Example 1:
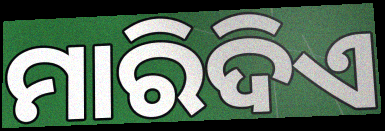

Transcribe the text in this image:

ମାରିଦିଏ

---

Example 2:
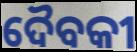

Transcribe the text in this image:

ଦୈବକୀ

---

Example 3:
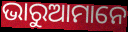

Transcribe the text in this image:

ଭାରୁଆମାନେ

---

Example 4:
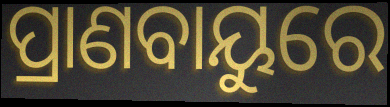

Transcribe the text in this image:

ପ୍ରାଣବାୟୁରେ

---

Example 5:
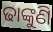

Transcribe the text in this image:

ଢାଙ୍କୁଣି